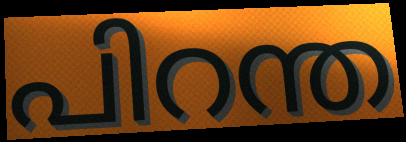
പിറന്ത